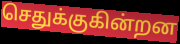
செதுக்குகின்றன